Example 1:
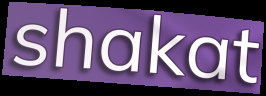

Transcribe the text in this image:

shakat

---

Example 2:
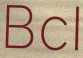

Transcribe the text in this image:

Bcl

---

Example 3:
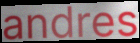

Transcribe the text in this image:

andres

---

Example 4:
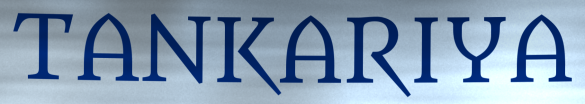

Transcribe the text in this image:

TANKARIYA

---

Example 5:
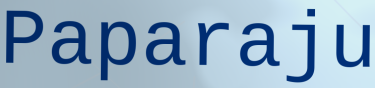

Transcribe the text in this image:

Paparaju